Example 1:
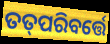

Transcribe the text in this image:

ତତ୍‌ପରିବର୍ତ୍ତେ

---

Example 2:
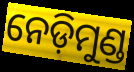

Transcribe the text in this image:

ନେଡ଼ିମୁଣ୍ଡ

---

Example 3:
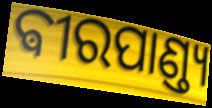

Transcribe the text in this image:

ଵୀରପାଣ୍ଡ୍ୟ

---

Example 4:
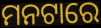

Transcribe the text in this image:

ମନଟାରେ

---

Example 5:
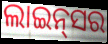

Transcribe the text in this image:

ଲାଇନ୍‍ସର